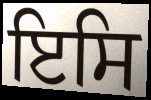
ਇਸਿ